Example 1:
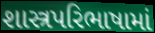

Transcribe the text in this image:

શાસ્ત્રપરિભાષામાં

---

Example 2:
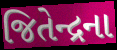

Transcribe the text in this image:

જિતેન્દ્રના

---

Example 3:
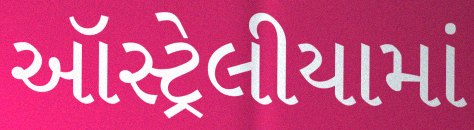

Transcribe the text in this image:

ઑસ્ટ્રેલીયામાં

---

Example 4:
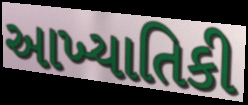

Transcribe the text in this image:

આખ્યાતિકી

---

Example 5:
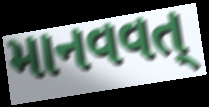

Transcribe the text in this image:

માનવવત્